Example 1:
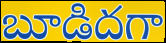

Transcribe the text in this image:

బూడిదగా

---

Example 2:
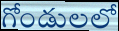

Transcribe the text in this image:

గోండులలో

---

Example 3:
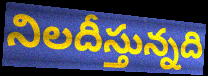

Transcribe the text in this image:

నిలదీస్తున్నది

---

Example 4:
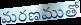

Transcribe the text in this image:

మరణముతో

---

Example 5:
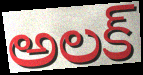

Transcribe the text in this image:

అలక్